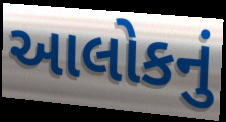
આલોકનું